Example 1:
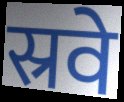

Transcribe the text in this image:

स्रवे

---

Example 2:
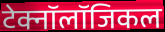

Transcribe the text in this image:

टेक्नॉलॉजिकल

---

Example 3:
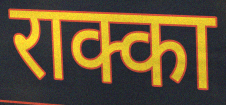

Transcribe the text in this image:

राक्का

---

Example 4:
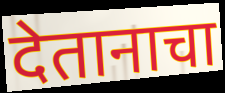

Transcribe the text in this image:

देतानाचा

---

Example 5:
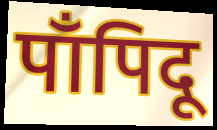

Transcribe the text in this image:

पाँपिदू